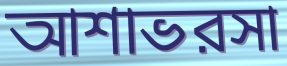
আশাভরসা